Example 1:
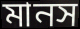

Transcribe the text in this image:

মানস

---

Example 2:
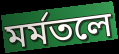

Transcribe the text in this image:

মর্মতলে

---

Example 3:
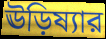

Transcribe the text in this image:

ঊড়িষ্যার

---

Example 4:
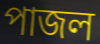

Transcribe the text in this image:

পাজল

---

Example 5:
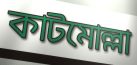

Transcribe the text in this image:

কাটমোল্লা